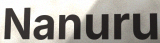
Nanuru